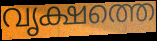
വൃക്ഷത്തെ